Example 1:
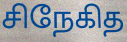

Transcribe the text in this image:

சிநேகித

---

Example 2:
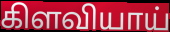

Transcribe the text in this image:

கிளவியாய்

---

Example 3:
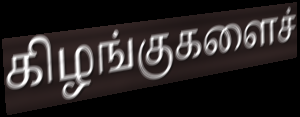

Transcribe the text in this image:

கிழங்குகளைச்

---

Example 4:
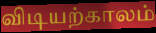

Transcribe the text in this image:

விடியற்காலம்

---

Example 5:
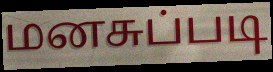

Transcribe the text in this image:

மனசுப்படி